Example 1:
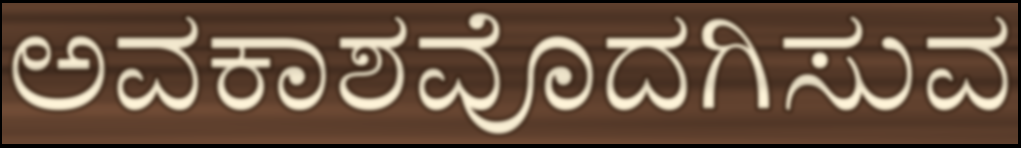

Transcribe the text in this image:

ಅವಕಾಶವೊದಗಿಸುವ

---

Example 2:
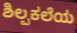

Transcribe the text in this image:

ಶಿಲ್ಪಕಲೆಯ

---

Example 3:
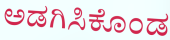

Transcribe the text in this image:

ಅಡಗಿಸಿಕೊಂಡ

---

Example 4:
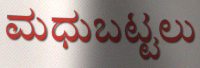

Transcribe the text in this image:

ಮಧುಬಟ್ಟಲು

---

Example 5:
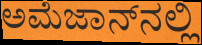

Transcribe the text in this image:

ಅಮೆಜಾನ್‌ನಲ್ಲಿ